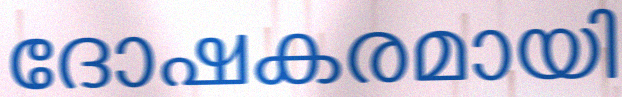
ദോഷകരമായി